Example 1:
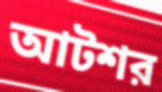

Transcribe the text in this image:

আটশর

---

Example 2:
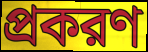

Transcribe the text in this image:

প্রকরণ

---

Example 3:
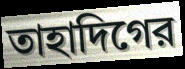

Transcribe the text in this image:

তাহাদিগের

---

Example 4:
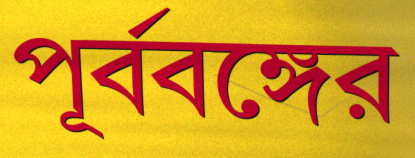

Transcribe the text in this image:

পূর্ববঙ্গের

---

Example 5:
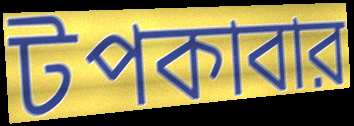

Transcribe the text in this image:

টপকাবার